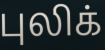
புலிக்